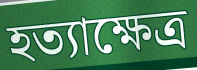
হত্যাক্ষেত্র